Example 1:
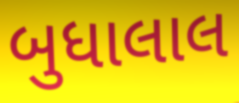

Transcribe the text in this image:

બુધાલાલ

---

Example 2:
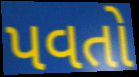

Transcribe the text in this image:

પવતો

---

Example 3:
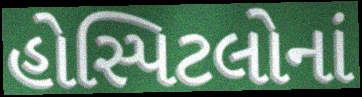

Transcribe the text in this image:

હોસ્પિટલોનાં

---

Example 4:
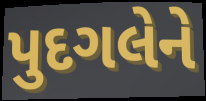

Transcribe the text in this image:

પુદગલેને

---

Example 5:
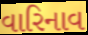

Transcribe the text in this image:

વારિનાવ